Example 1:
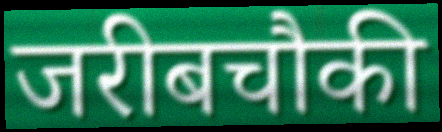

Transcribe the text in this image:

जरीबचौकी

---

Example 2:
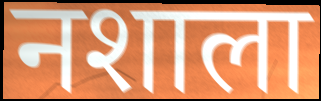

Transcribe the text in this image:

नशाला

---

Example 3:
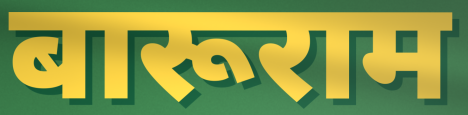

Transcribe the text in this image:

बारूराम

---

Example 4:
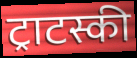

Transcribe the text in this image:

ट्राटस्की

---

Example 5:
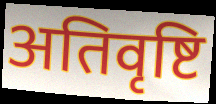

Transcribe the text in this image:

अतिवृष्टि